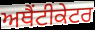
ਅਥੈਂਟੀਕੇਟਰ